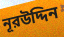
নূরউদ্দিন